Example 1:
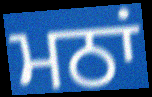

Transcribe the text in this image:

ਮਠਾਂ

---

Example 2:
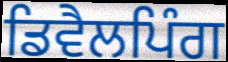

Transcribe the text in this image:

ਡਿਵੈਲਪਿੰਗ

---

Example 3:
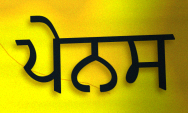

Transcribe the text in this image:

ਪੇਨਸ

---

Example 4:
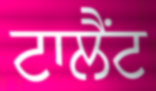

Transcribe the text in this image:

ਟਾਲੈਂਟ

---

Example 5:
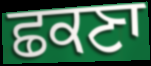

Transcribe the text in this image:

ਛਕਣਾ